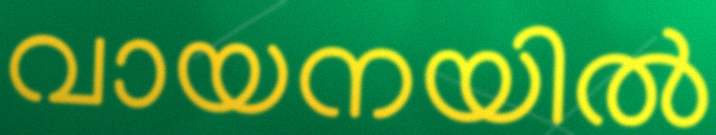
വായനയിൽ